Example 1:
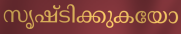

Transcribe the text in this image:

സൃഷ്ടിക്കുകയോ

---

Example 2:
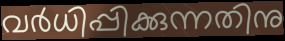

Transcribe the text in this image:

വർധിപ്പിക്കുന്നതിനു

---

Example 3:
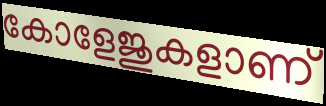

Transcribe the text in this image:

കോളേജുകളാണ്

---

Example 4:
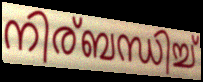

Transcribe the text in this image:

നിര്ബന്ധിച്ച്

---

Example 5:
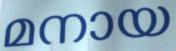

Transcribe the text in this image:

മനായ